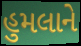
હુમલાને